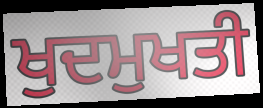
ਖੁਦਮੁਖਤੀ